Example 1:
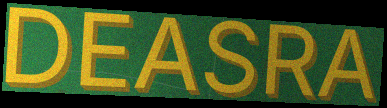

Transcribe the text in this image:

DEASRA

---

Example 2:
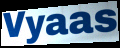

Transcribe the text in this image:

Vyaas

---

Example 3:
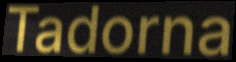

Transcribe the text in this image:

Tadorna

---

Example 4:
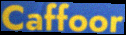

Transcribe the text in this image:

Caffoor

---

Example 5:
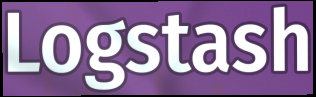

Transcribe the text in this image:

Logstash